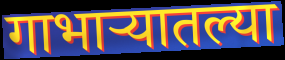
गाभाऱ्यातल्या